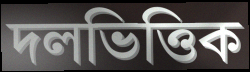
দলভিত্তিক